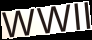
WWII